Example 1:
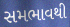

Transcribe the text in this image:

સમભાવથી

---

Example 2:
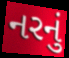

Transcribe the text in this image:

નરનું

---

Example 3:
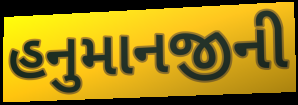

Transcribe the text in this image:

હનુમાનજીની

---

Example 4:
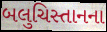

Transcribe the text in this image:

બલુચિસ્તાનના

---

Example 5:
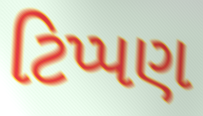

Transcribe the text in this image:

ટિપ્પણ